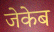
जेकेब